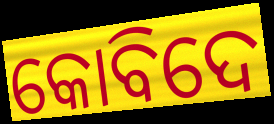
କୋବିଦେ